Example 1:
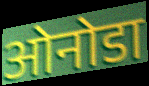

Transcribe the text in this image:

ओनोडा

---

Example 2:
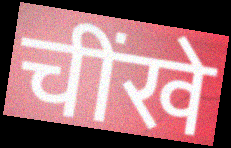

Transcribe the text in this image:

चींखे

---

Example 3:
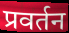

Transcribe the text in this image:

प्रवर्तन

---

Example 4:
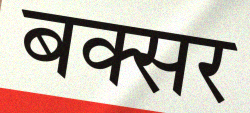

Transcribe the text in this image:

बक्सर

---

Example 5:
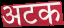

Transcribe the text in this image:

अटक